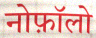
नोफ़ॉलो